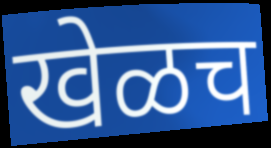
खेळच